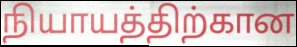
நியாயத்திற்கான